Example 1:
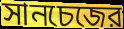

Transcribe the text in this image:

সানচেজের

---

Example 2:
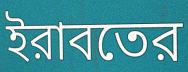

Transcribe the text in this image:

ইরাবতের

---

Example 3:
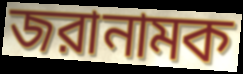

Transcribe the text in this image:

জরানামক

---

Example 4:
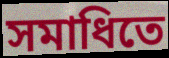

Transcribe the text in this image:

সমাধিতে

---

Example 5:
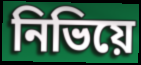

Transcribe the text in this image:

নিভিয়ে